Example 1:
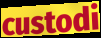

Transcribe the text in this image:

custodi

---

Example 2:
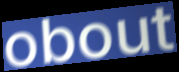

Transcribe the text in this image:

obout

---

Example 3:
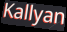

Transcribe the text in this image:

Kallyan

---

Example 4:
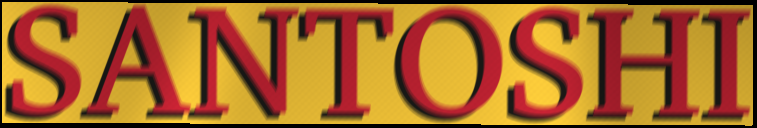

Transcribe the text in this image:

SANTOSHI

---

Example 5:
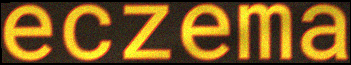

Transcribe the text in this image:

eczema